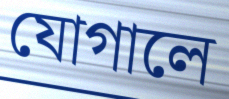
যোগালে